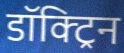
डॉक्ट्रिन